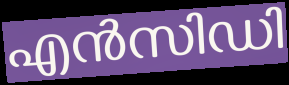
എൻസിഡി